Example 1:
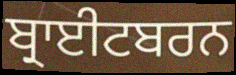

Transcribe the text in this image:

ਬ੍ਰਾਈਟਬਰਨ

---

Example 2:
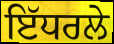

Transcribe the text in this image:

ਇੱਧਰਲੇ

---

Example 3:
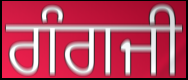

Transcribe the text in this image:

ਗੰਗਜੀ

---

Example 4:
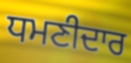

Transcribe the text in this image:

ਧਮਣੀਦਾਰ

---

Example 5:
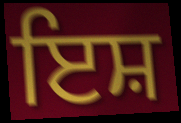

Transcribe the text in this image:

ਇਸ਼